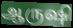
ஆருஷி